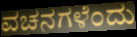
ವಚನಗಳೆಂದು